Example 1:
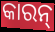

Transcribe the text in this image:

କାରନ୍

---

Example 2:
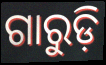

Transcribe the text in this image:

ଗାରୁଡ଼ି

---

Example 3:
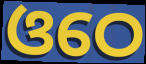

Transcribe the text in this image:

ଓଠେ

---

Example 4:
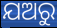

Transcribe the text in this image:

ଯଅରୁ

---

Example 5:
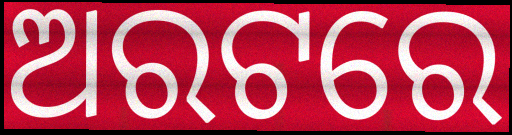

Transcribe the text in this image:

ଅରଟରେ